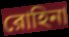
রোহিনা